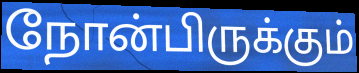
நோன்பிருக்கும்